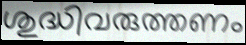
ശുദ്ധിവരുത്തണം